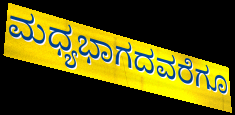
ಮಧ್ಯಭಾಗದವರೆಗೂ